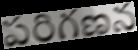
పరిగణన